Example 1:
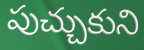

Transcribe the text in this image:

పుచ్చుకుని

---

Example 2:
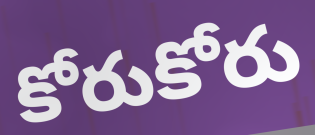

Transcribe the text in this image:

కోరుకోరు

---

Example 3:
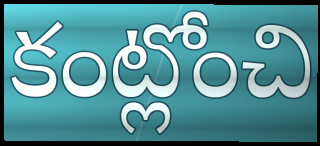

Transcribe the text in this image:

కంట్లోంచి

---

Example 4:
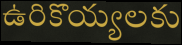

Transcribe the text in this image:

ఉరికొయ్యలకు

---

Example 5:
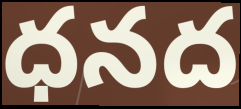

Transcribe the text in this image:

ధనద